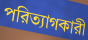
পরিত্যাগকারী